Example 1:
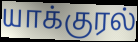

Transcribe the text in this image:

யாக்குரல்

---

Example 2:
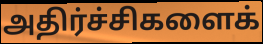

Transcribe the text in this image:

அதிர்ச்சிகளைக்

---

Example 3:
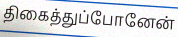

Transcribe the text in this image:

திகைத்துப்போனேன்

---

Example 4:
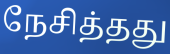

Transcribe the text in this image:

நேசித்தது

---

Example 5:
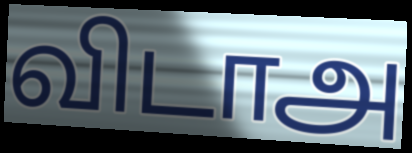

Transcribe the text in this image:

விடாஅ